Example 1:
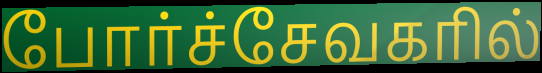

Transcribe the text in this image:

போர்ச்சேவகரில்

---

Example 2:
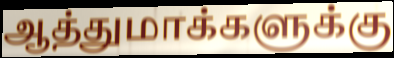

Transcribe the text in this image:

ஆத்துமாக்களுக்கு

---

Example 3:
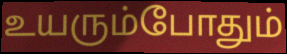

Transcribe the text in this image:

உயரும்போதும்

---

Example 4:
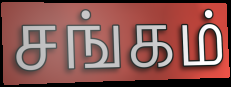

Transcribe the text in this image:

சங்கம்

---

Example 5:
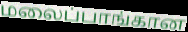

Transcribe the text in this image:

மலைப்பாங்கான